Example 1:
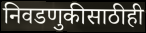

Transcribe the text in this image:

निवडणुकीसाठीही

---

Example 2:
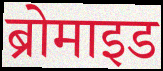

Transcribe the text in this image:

ब्रोमाइड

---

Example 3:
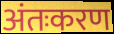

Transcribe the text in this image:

अंतःकरण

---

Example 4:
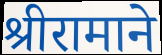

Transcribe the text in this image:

श्रीरामाने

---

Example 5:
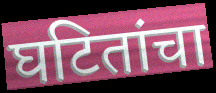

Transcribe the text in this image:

घटितांचा